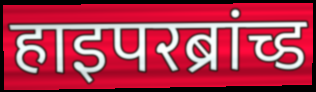
हाइपरब्रांच्ड